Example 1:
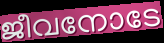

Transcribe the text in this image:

ജീവനോടേ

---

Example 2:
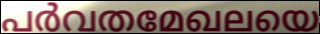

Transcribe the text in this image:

പർവതമേഖലയെ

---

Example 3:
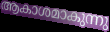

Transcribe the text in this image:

ആകാശമാകുന്നു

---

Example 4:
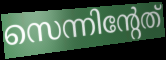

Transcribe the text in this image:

സെന്നിന്റേത്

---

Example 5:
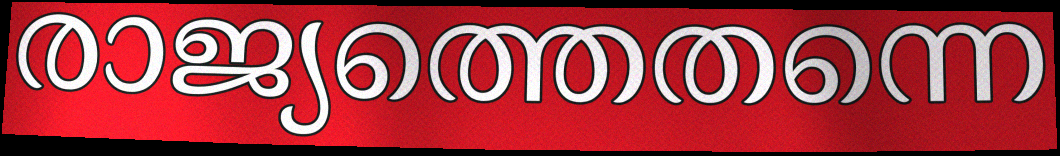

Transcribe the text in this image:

രാജ്യത്തെതന്നെ